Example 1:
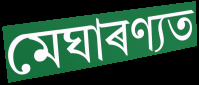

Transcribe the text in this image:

মেঘাৰণ্যত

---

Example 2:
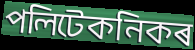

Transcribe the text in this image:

পলিটেকনিকৰ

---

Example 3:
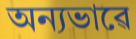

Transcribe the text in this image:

অন্যভাৱে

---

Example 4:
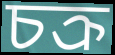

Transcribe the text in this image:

চক্ৰ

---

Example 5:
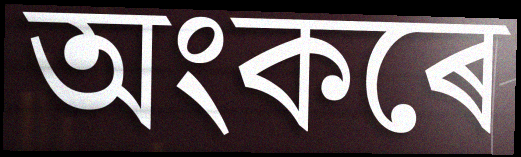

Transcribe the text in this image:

অংকৰে